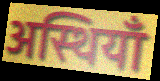
अस्थियाँ